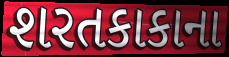
શરતકાકાના